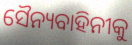
ସୈନ୍ୟବାହିନୀକୁ